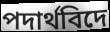
পদাৰ্থবিদে